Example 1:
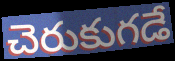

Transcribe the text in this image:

చెరుకుగడే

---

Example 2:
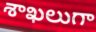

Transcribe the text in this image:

శాఖలుగా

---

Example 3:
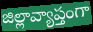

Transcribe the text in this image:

జిల్లావ్యాప్తంగా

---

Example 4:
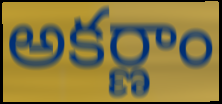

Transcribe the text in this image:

అకర్ణాం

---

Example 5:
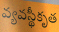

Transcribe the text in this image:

వ్యవస్థీకృత